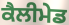
ਕੈਲੀਮੇਡ